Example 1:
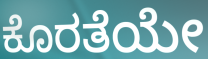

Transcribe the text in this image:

ಕೊರತೆಯೇ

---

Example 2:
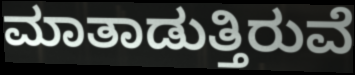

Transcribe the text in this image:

ಮಾತಾಡುತ್ತಿರುವೆ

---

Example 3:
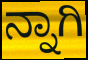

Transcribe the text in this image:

ನ್ನಾಗಿ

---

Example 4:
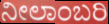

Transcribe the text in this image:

ನೀಲಾಂಬರಿ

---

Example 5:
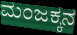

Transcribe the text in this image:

ಮಂಜಕ್ಕನ